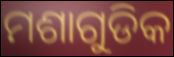
ମଶାଗୁଡିକ